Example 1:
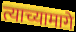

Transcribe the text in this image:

त्याच्यामागे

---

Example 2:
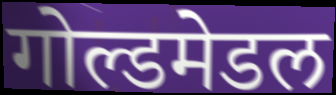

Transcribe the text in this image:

गोल्डमेडल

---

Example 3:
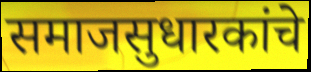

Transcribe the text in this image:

समाजसुधारकांचे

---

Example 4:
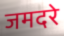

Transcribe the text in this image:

जमदरे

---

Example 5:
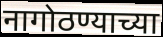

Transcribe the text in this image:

नागोठण्याच्या